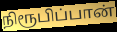
நிரூபிப்பான்